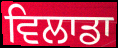
ਵਿਲਾਡਾ